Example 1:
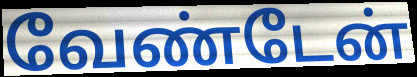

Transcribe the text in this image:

வேண்டேன்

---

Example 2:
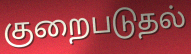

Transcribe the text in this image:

குறைபடுதல்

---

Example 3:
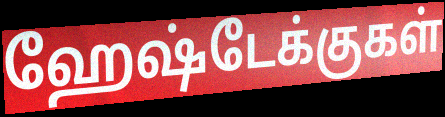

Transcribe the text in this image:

ஹேஷ்டேக்குகள்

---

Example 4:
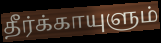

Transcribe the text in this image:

தீர்க்காயுளும்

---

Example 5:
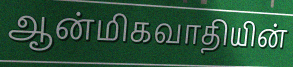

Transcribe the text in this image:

ஆன்மிகவாதியின்